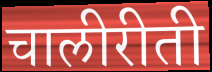
चालीरीती